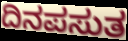
ದಿನಪಸುತ